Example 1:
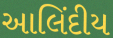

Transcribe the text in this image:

આલિંદીય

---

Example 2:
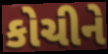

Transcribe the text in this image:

કોચીને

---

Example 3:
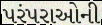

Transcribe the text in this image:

પરંપરાઓની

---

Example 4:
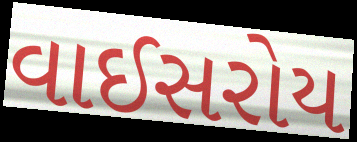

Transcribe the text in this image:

વાઈસરોય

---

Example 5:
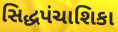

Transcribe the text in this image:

સિદ્ધપંચાશિકા